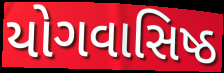
યોગવાસિષ્ઠ